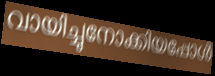
വായിച്ചുനോക്കിയപ്പോൾ